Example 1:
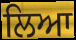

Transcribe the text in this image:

ਲਿਆ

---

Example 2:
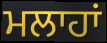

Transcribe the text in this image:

ਮਲਾਹਾਂ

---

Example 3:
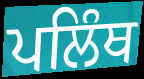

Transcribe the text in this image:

ਪਲਿੰਥ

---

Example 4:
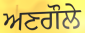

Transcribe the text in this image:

ਅਣਗੌਲੇ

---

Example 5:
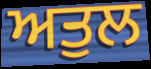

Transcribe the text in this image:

ਅਤੁਲ